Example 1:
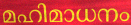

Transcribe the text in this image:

മഹിമാധനം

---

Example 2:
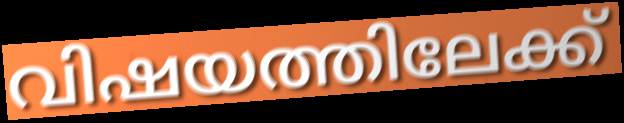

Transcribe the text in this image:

വിഷയത്തിലേക്ക്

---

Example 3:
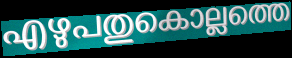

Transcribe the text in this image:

എഴുപതുകൊല്ലത്തെ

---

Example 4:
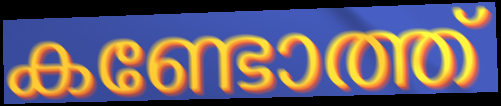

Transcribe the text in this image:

കണ്ടോത്ത്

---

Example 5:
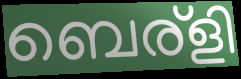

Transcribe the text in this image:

ബെര്ളി